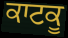
ਕਾਟਕੂ